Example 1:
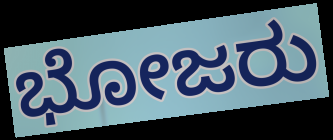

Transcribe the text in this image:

ಭೋಜರು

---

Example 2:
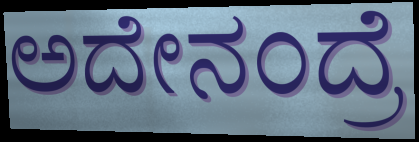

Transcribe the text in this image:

ಅದೇನಂದ್ರೆ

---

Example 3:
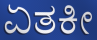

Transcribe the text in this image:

ಏತಕೀ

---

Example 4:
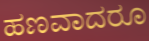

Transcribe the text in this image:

ಹಣವಾದರೂ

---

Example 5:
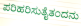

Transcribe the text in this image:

ಪರಿಹರಿಸುತೈತಂದನು